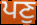
ਪਣੁ